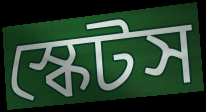
স্কেটস